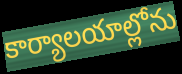
కార్యాలయాల్లోను